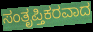
ಸಂತೃಪ್ತಿಕರವಾದ